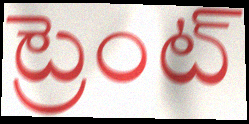
ట్రెంట్